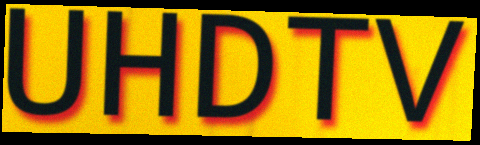
UHDTV